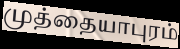
முத்தையாபுரம்